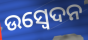
ଉସ୍ୱେଦନ